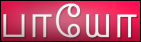
பாயோ